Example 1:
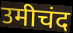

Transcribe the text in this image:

उमीचंद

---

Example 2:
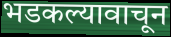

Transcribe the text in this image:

भडकल्यावाचून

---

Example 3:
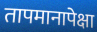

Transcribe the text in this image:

तापमानापेक्षा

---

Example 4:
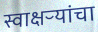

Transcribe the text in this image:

स्वाक्षऱ्यांचा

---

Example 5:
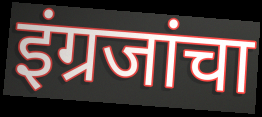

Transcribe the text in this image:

इंग्रजांचा